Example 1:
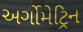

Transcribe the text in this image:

અર્ગોમેટ્રિન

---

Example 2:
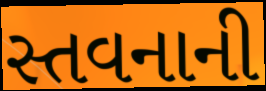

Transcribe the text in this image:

સ્તવનાની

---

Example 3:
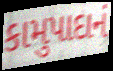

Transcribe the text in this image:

કામુપાદાનં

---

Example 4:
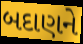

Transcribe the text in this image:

બદાણને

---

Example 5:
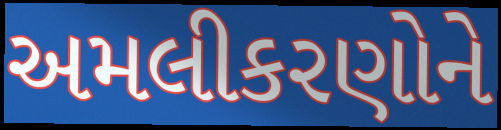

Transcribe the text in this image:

અમલીકરણોને